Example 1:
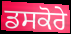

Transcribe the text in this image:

ਡਸਕੋਰੇ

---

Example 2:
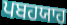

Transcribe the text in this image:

ਪਬਹਯਾਹ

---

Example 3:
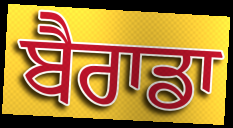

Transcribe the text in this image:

ਬੈਰਾਡਾ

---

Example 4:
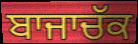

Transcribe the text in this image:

ਬਾਜਾਚੱਕ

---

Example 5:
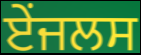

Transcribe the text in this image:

ਏਂਜਲਸ